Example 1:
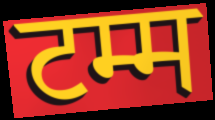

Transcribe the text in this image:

टम्म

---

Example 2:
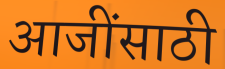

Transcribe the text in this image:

आजींसाठी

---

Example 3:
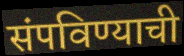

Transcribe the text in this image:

संपविण्याची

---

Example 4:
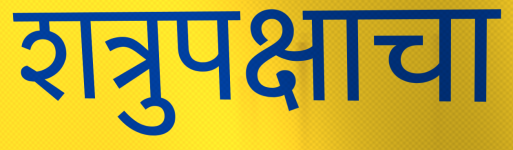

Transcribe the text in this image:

शत्रुपक्षाचा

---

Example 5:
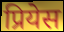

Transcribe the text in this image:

प्रियेस